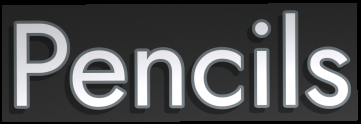
Pencils